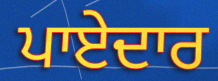
ਪਾਏਦਾਰ